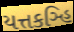
યત્તકઞ્હિ